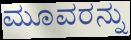
ಮೂವರನ್ನು